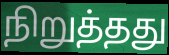
நிறுத்தது